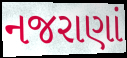
નજરાણાં